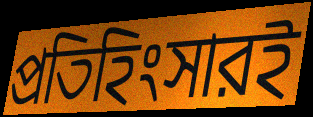
প্রতিহিংসারই